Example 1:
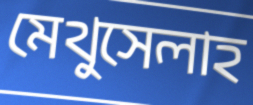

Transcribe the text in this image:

মেথুসেলাহ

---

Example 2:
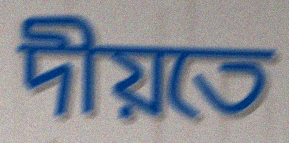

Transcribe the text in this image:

দীয়তে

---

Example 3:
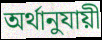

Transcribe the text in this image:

অর্থানুযায়ী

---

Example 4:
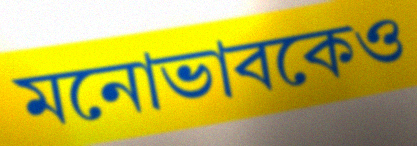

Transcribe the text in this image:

মনোভাবকেও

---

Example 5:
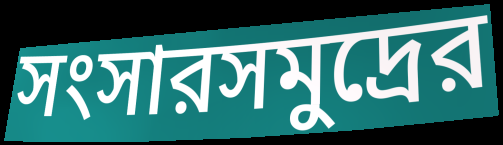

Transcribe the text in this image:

সংসারসমুদ্রের